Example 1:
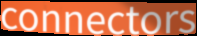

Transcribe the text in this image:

connectors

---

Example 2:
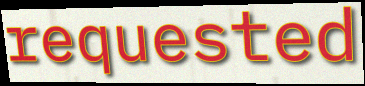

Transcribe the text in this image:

requested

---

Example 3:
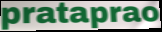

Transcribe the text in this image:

prataprao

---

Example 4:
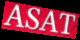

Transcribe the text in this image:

ASAT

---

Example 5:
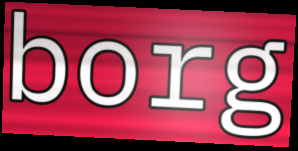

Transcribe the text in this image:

borg